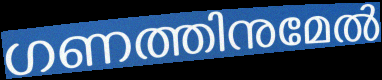
ഗണത്തിനുമേൽ